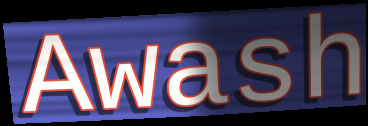
Awash